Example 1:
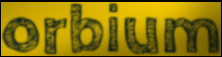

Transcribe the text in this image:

orbium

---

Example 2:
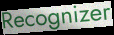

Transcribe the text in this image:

Recognizer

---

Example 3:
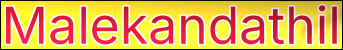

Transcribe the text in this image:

Malekandathil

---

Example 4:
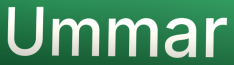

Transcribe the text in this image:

Ummar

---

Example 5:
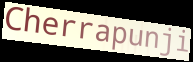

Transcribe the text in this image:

Cherrapunji